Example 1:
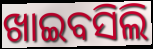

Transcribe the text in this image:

ଖାଇବସିଲି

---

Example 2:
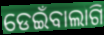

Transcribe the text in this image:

ଡେଇଁବାଲାଗି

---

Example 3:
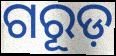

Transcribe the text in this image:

ଗରୂଡ଼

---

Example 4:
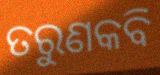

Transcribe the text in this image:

ତରୁଣକବି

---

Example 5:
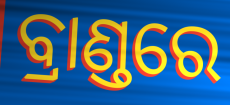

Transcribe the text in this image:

ବ୍ରାଣ୍ଡରେ